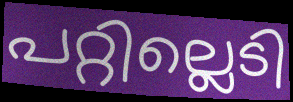
പറ്റില്ലെടി